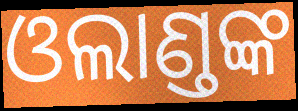
ଓଲାଣ୍ଡଙ୍କ